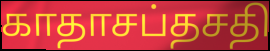
காதாசப்தசதி